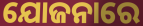
ଯୋଜନାରେ